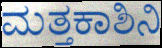
ಮತ್ತಕಾಶಿನಿ